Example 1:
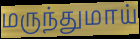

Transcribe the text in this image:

மருந்துமாய்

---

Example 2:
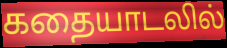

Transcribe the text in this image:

கதையாடலில்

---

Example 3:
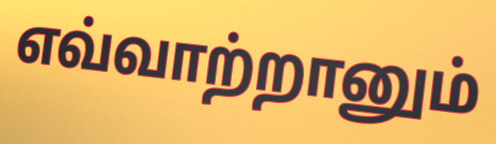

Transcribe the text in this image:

எவ்வாற்றானும்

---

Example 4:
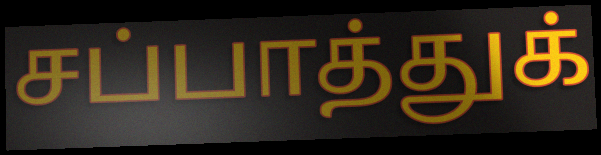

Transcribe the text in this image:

சப்பாத்துக்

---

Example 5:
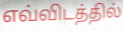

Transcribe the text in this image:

எவ்விடத்தில்